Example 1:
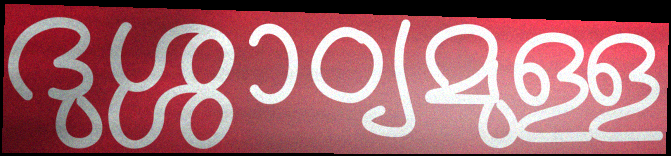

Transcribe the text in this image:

ദുശ്ശാഠ്യമുള്ള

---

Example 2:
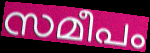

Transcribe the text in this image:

സമീപം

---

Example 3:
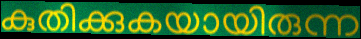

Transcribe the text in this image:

കുതിക്കുകയായിരുന്ന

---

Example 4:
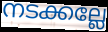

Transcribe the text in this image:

നടക്കല്ലേ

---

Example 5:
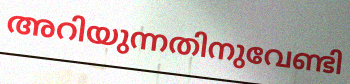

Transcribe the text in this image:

അറിയുന്നതിനുവേണ്ടി